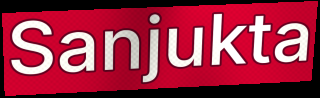
Sanjukta